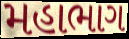
મહાભાગ